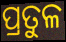
ପ୍ରତୁଳ